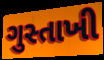
ગુસ્તાખી